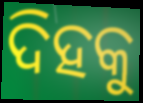
ଦିହକୁ